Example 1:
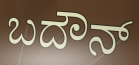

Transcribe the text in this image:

ಬದೌನ್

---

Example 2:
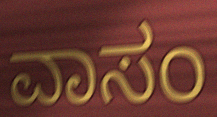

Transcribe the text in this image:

ವಾಸಂ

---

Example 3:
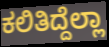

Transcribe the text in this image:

ಕಲಿತಿದ್ದೆಲ್ಲಾ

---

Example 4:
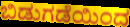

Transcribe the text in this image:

ಬಿಡುಗಡೆಯಿಂದ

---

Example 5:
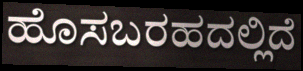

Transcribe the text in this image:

ಹೊಸಬರಹದಲ್ಲಿದೆ